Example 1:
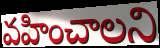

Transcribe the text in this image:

వహించాలని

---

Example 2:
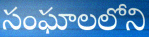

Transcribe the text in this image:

సంఘాలలోని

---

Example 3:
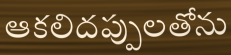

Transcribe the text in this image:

ఆకలిదప్పులతోను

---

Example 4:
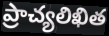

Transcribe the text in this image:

ప్రాచ్యలిఖిత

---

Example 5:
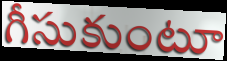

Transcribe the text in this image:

గీసుకుంటూ